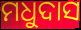
ମଧୁଦାସ